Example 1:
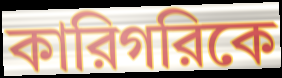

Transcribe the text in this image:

কারিগরিকে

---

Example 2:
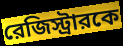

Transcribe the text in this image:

রেজিস্ট্রারকে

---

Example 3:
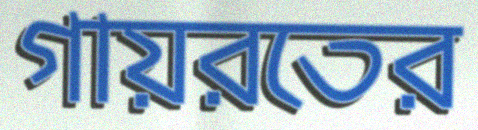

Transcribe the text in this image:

গায়রতের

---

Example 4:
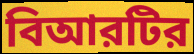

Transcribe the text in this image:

বিআরটির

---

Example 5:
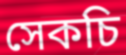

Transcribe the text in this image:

সেকচি